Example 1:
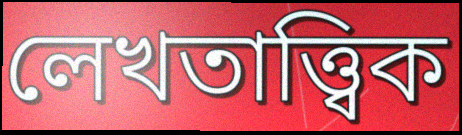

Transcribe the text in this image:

লেখতাত্ত্বিক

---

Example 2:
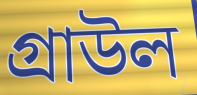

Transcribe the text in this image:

গ্রাউল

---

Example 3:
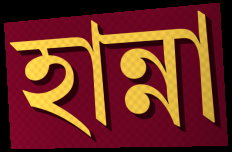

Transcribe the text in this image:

হান্না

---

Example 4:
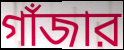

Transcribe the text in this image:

গাঁজার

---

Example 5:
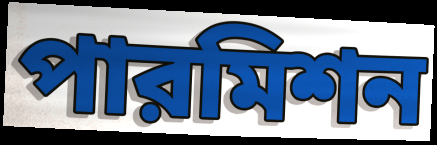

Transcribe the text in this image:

পারমিশন